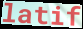
latif